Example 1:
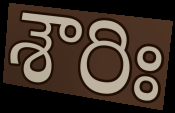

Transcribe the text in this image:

శౌరిః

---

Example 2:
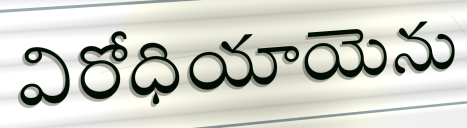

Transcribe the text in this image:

విరోధియాయెను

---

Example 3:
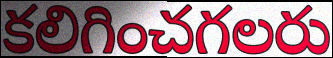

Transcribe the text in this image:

కలిగించగలరు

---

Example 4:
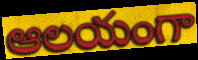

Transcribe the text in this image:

ఆలయంగా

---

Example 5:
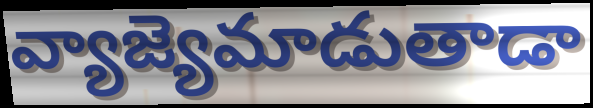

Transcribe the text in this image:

వ్యాజ్యెమాడుతాడా